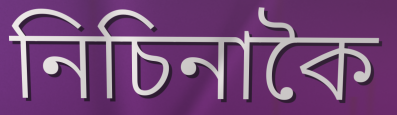
নিচিনাকৈ